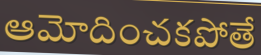
ఆమోదించకపోతే